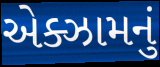
એક્ઝામનું